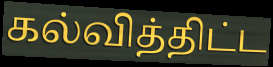
கல்வித்திட்ட